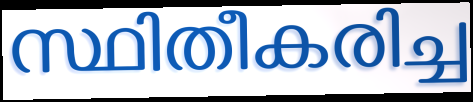
സ്ഥിതീകരിച്ച